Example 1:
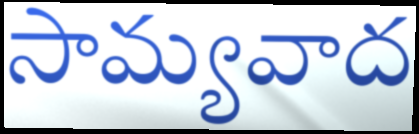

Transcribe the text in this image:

సామ్యవాద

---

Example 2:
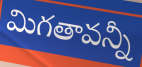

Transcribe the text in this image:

మిగతావన్నీ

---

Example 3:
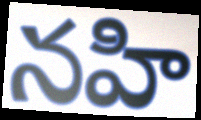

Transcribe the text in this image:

నహి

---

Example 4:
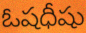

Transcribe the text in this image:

ఓషధీషు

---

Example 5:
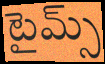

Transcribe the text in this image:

టైమ్స్